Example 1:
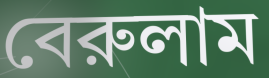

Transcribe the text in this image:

বেরুলাম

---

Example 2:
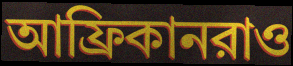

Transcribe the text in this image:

আফ্রিকানরাও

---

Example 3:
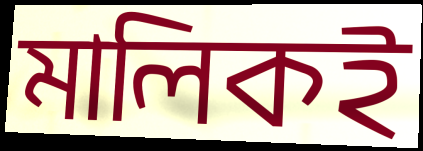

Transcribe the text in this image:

মালিকই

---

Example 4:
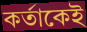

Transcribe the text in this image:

কর্তাকেই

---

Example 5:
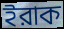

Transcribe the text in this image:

ইরাক